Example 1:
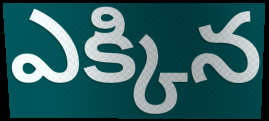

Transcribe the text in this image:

ఎక్కిన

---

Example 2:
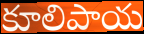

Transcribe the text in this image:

కూలిపాయ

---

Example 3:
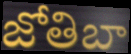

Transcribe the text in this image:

జోతిబా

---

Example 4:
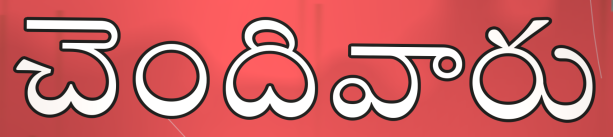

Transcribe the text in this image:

చెందివారు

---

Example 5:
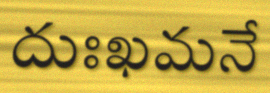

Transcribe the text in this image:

దుఃఖమనే